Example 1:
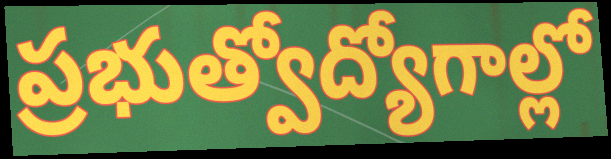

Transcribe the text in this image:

ప్రభుత్వోద్యోగాల్లో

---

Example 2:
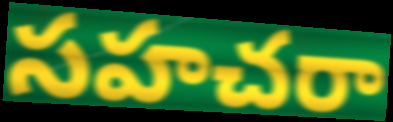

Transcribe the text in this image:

సహచరా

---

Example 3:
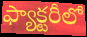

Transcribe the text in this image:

ఫ్యాక్టరీలో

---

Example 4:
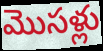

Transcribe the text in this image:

మొసళ్లు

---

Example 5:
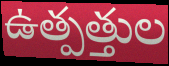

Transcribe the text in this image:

ఉత్పత్తుల